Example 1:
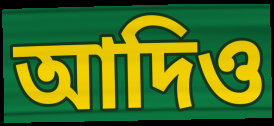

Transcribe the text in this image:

আদিও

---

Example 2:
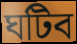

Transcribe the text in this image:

ঘটিব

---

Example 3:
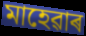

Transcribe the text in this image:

মাহেৱাৰ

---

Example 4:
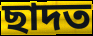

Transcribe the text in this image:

ছাদত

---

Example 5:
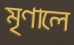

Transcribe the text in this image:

মৃণালে